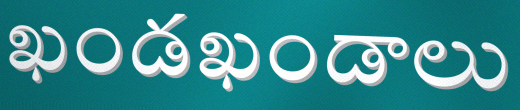
ఖండఖండాలు